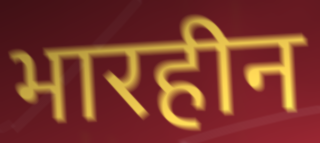
भारहीन